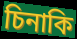
চিনাকি